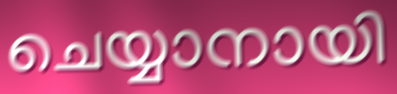
ചെയ്യാനായി